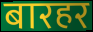
बारहर